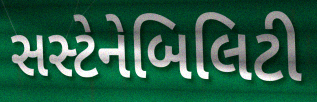
સસ્ટેનેબિલિટી